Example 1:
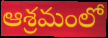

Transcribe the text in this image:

ఆశ్రమంలో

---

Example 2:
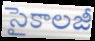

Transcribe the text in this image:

సైకాలజీ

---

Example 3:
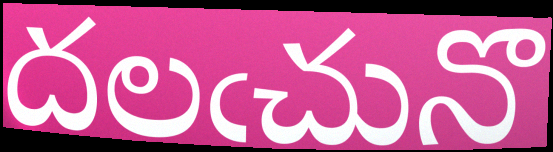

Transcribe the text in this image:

దలఁచునొ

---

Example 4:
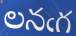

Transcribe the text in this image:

లనఁగ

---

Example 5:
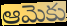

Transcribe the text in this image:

ఆమెకు